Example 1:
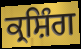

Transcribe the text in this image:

ਕ੍ਰਸ਼ਿੰਗ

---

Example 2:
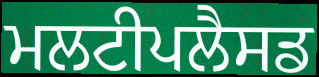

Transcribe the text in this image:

ਮਲਟੀਪਲੈਸਡ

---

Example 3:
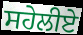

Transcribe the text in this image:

ਸਹੇਲੀਏ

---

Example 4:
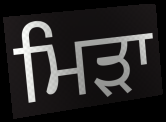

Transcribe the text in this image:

ਮਿੜਾ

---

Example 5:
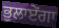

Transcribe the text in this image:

ਭੁਲਾਏਂਗਾ